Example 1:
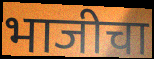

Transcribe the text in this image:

भाजीचा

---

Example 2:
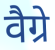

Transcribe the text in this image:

वैग्रे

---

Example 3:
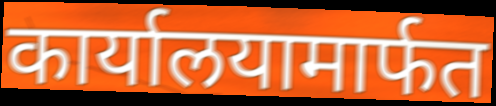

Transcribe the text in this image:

कार्यालयामार्फत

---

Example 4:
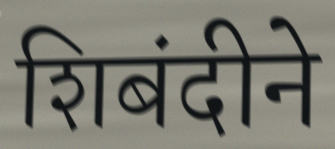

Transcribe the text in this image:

शिबंदीने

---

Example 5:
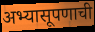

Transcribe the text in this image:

अभ्यासूपणाची